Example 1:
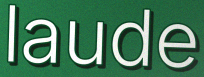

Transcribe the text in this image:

laude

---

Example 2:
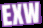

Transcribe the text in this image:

EXW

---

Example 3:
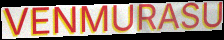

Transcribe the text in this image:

VENMURASU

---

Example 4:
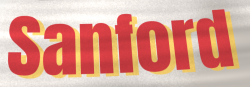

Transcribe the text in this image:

Sanford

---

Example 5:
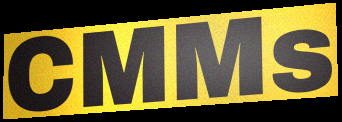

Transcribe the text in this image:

CMMs